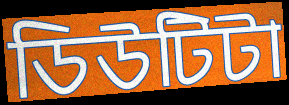
ডিউটিটা